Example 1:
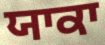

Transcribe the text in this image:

ਯਾਕਾ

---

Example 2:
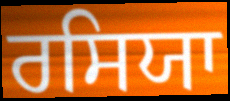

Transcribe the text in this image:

ਰਸਿਯਾ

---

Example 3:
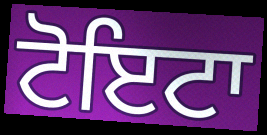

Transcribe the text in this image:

ਟੋਇਟਾ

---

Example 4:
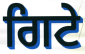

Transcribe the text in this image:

ਗਿਟੇ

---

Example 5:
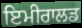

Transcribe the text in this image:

ਇਮੀਰਾਲਡ